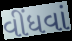
વીંધવાં